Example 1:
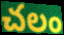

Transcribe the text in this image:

చలం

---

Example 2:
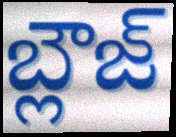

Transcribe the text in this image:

బ్లౌజ్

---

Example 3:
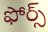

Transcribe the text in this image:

ఫోర్స్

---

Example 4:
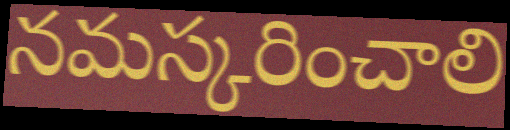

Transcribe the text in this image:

నమస్కరించాలి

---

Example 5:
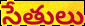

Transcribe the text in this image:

సేతులు